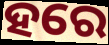
ହରେ